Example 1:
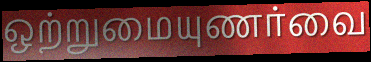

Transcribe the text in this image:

ஒற்றுமையுணர்வை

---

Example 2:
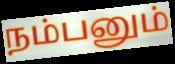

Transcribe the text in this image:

நம்பனும்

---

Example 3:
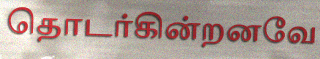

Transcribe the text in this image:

தொடர்கின்றனவே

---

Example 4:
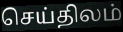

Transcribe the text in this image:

செய்திலம்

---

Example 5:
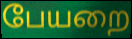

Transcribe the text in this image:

பேயறை